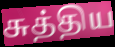
சுத்திய